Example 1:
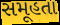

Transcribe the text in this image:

સમૂહતા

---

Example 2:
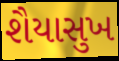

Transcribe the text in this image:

શૈયાસુખ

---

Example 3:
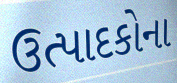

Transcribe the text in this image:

ઉત્પાદકોના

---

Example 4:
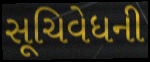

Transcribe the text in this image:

સૂચિવેધની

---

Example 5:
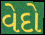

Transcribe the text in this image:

વેદો